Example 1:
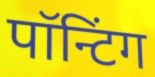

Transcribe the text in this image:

पॉन्टिंग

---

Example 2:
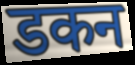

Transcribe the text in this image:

डकन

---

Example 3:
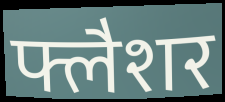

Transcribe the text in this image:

फ्लैशर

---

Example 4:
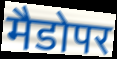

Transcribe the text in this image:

मैडोपर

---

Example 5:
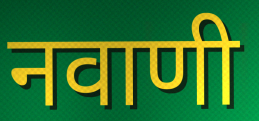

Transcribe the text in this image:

नवाणी